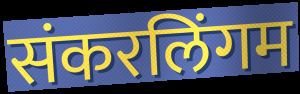
संकरलिंगम